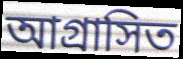
আগ্রাসিত